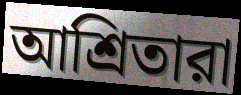
আশ্রিতারা